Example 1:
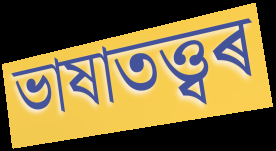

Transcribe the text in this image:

ভাষাতত্ত্বৰ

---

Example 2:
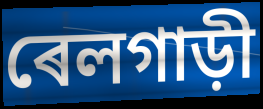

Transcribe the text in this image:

ৰেলগাড়ী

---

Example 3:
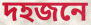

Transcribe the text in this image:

দহজনে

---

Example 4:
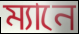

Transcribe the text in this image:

ম্যানে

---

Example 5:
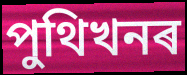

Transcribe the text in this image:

পুথিখনৰ